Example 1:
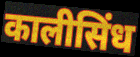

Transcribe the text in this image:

कालीसिंध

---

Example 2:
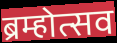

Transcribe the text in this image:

ब्रम्होत्सव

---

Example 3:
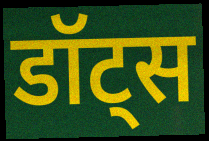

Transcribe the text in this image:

डॉट्स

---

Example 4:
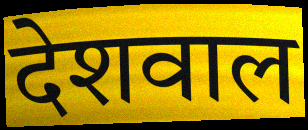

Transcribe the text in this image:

देशवाल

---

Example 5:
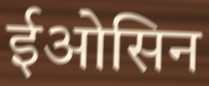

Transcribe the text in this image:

ईओसिन